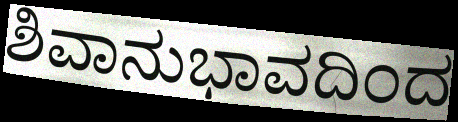
ಶಿವಾನುಭಾವದಿಂದ